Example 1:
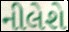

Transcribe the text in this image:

નીલેશે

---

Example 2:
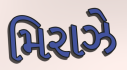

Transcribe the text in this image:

મિરાઝે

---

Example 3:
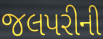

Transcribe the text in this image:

જલપરીની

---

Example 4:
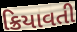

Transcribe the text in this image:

ક્રિયાવતી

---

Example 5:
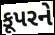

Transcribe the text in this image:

કૂપરને